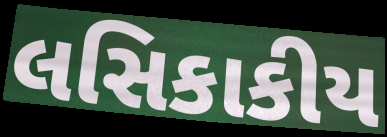
લસિકાકીય